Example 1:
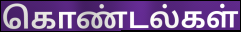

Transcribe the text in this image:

கொண்டல்கள்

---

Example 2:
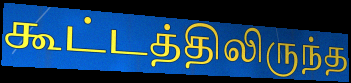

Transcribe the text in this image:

கூட்டத்திலிருந்த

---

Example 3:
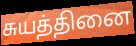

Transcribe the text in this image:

சுயத்தினை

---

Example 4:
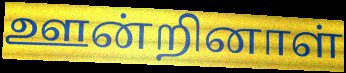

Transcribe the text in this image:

ஊன்றினாள்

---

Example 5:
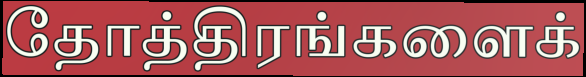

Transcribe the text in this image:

தோத்திரங்களைக்